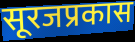
सूरजप्रकास